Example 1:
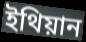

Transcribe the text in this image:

ইথিয়ান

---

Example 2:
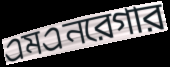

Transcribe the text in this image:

এমএনরেগার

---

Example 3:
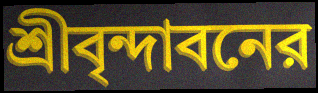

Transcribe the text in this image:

শ্রীবৃন্দাবনের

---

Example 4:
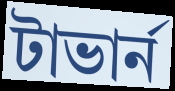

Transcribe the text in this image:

টাভার্ন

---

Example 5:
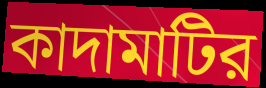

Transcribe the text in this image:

কাদামাটির